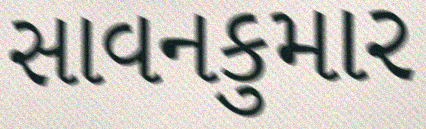
સાવનકુમાર